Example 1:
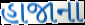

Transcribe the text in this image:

હાજાના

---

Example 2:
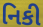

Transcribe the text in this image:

નિકી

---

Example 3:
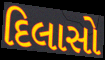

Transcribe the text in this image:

દિલાસો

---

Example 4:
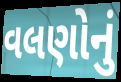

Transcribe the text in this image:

વલણોનું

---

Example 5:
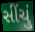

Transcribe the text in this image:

સીંચું